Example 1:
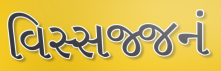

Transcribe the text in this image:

વિસ્સજ્જનં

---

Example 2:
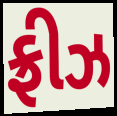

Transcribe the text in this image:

ફ્રીઝ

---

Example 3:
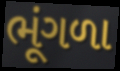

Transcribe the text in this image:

ભૂંગળા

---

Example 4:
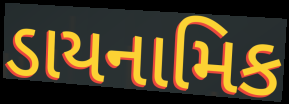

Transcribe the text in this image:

ડાયનામિક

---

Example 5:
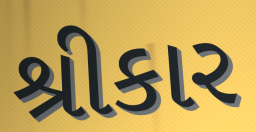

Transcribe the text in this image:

શ્રીકાર